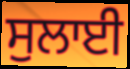
ਸੁਲਾਈ